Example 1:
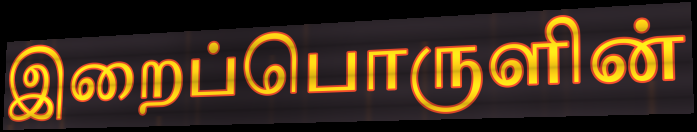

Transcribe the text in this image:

இறைப்பொருளின்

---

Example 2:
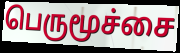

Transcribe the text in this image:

பெருமூச்சை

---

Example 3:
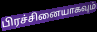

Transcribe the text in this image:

பிரச்சினையாகவும்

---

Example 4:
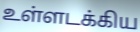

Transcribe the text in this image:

உள்ளடக்கிய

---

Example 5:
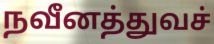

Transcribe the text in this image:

நவீனத்துவச்